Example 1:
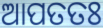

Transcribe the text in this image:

ଆପତତଃ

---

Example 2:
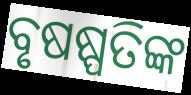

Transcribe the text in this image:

ବୃଷଷ୍ପତିଙ୍କ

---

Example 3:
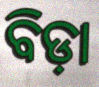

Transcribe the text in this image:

ବିଡ଼ା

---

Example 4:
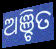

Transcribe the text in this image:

ଅଞ୍ଚିତ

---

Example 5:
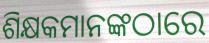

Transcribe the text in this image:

ଶିକ୍ଷକମାନଙ୍କଠାରେ